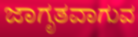
ಜಾಗೃತವಾಗುವ